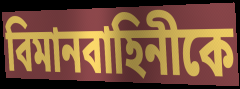
বিমানবাহিনীকে